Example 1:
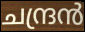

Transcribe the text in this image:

ചന്ദ്രൻ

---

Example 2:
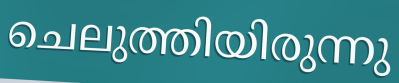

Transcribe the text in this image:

ചെലുത്തിയിരുന്നു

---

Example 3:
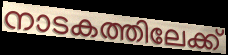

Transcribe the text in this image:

നാടകത്തിലേക്ക്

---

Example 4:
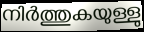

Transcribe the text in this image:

നിർത്തുകയുള്ളു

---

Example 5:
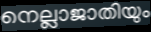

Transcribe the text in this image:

നെല്ലാജാതിയും